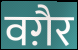
वग़ैर